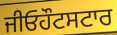
ਜੀਓਹੌਟਸਟਾਰ